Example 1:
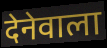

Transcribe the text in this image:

देनेवाला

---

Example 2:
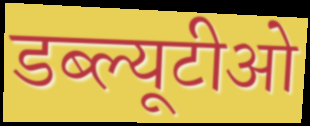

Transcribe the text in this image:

डब्ल्यूटीओ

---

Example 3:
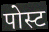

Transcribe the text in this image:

पोस्ट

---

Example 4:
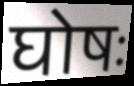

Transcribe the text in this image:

घोषः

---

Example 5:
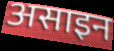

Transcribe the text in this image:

असाइन